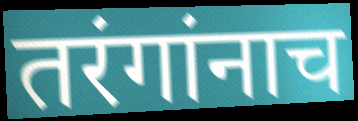
तरंगांनाच